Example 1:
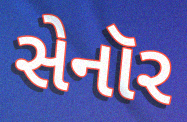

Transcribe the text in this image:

સેનૉર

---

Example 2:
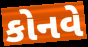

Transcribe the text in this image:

કોનવે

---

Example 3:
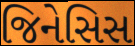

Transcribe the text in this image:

જિનેસિસ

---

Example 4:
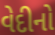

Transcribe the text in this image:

વેદીનો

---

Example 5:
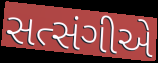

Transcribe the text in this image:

સત્સંગીએ